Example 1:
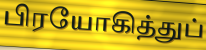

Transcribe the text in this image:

பிரயோகித்துப்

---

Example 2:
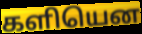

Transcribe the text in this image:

களியென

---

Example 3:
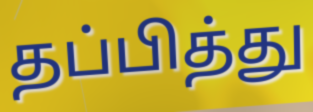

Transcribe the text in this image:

தப்பித்து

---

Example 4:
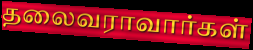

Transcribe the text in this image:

தலைவராவார்கள்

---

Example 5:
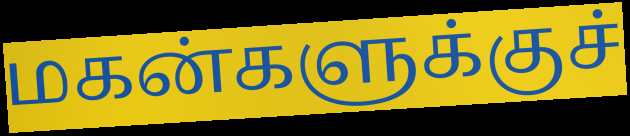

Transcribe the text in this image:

மகன்களுக்குச்